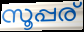
സൂപ്പര്